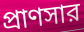
প্রাণসার